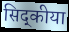
सिद्‌कीया